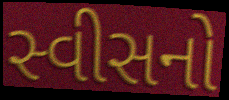
સ્વીસનો